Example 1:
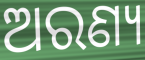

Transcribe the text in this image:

ଅରଣ୍ୟ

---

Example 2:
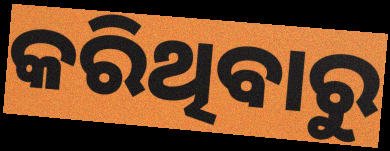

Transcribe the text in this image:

କରିଥିବାରୁ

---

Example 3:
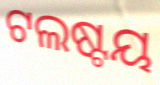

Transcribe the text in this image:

ଟଲଷ୍ଟୟ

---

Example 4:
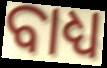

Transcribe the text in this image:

ବାଧ୍ୟ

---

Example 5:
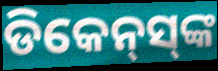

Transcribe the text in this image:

ଡିକେନ୍‌ସ୍‌ଙ୍କ